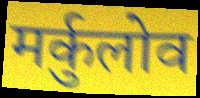
मर्कुलोव